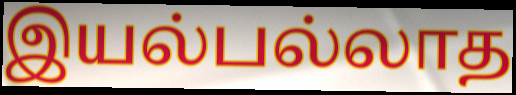
இயல்பல்லாத